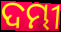
ଦମ୍ଭୀ